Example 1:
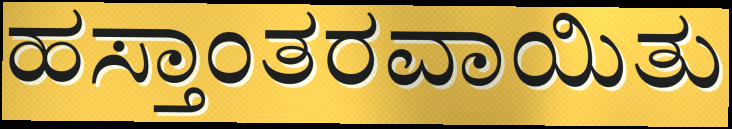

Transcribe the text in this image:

ಹಸ್ತಾಂತರವಾಯಿತು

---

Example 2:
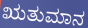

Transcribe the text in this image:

ಋತುಮಾನ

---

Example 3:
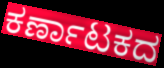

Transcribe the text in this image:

ಕರ್ಣಾಟಕದ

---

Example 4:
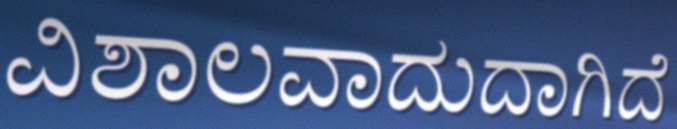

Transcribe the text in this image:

ವಿಶಾಲವಾದುದಾಗಿದೆ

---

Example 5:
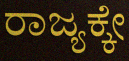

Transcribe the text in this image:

ರಾಜ್ಯಕ್ಕೇ